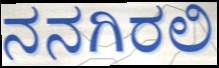
ನನಗಿರಲಿ